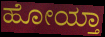
ಹೋಯ್ತಾ